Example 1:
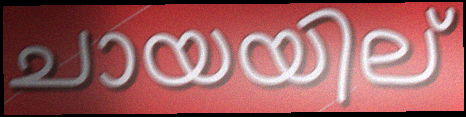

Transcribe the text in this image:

ചായയില്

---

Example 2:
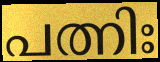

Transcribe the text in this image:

പത്നിഃ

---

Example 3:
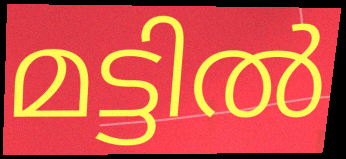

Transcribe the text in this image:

മട്ടിൽ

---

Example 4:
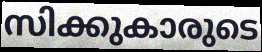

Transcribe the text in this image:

സിക്കുകാരുടെ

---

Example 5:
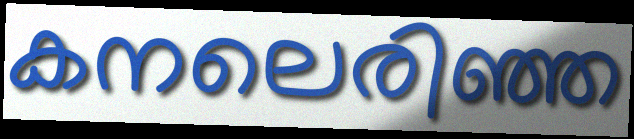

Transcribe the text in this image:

കനലെരിഞ്ഞ